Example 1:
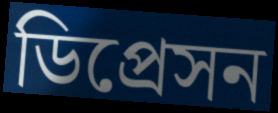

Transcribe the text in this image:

ডিপ্রেসন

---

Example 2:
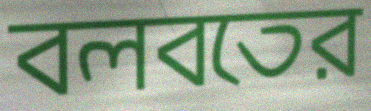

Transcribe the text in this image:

বলবতের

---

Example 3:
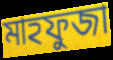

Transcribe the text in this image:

মাহফুজা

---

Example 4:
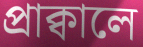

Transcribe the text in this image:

প্রাক্বালে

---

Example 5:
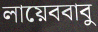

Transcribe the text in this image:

লায়েববাবু